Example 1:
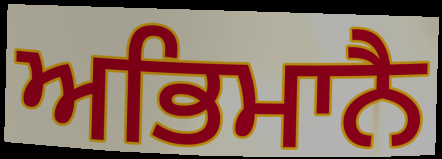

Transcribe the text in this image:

ਅਭਿਮਾਨੈ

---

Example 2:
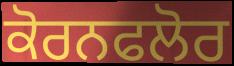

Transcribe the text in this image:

ਕੋਰਨਫਲੋਰ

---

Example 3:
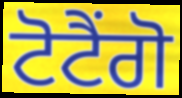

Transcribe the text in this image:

ਟੋਟੈਂਗੋ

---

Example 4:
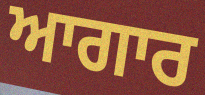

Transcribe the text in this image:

ਆਗਾਰ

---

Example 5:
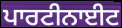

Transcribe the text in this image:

ਪਾਰਟੀਨਾਈਟ